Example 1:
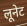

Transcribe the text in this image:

लूनेट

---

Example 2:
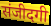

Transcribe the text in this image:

संजीदगी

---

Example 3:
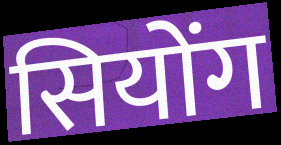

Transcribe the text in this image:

सियोंग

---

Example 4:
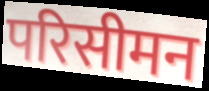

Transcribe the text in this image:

परिसीमन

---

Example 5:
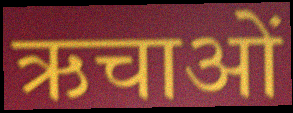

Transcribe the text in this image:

ऋचाओं